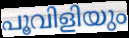
പൂവിളിയും